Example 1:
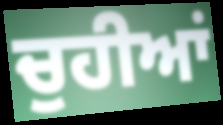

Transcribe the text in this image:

ਚੁਹੀਆਂ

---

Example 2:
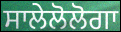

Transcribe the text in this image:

ਸਾਲੇਲੋਲੋਗਾ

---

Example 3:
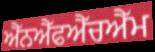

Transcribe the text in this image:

ਐੱਨਐੱਫਐੱਚਐੱਮ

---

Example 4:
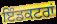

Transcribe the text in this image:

ਇੰਡਕਟਰਾਂ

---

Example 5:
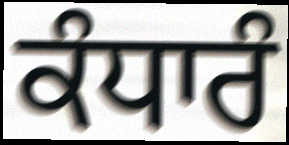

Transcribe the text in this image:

ਕੰਧਾਰੰ